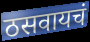
ठसवायचं